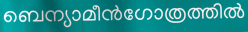
ബെന്യാമീൻഗോത്രത്തിൽ